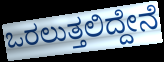
ಒರಲುತ್ತಲಿದ್ದೇನೆ